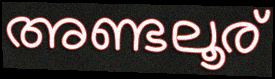
അണ്ടലൂര്